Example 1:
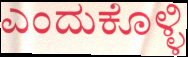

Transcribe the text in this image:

ಎಂದುಕೊಳ್ಳಿ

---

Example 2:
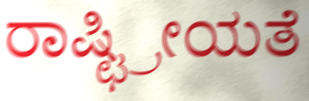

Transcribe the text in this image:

ರಾಷ್ಟ್ರೀಯತೆ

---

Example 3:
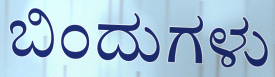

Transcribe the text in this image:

ಬಿಂದುಗಳು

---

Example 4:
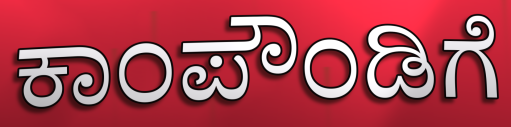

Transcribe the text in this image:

ಕಾಂಪೌಂಡಿಗೆ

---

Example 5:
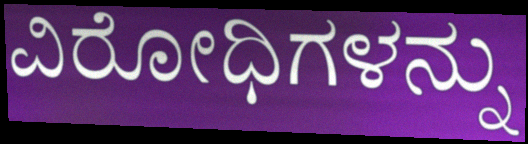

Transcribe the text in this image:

ವಿರೋಧಿಗಳನ್ನು